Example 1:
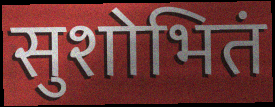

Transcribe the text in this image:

सुशोभितं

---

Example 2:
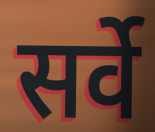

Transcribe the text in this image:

सर्वे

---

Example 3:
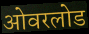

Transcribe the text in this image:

ओवरलोड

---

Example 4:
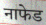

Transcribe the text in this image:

नाफेड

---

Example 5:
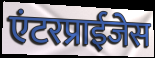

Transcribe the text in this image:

एंटरप्राईजेस